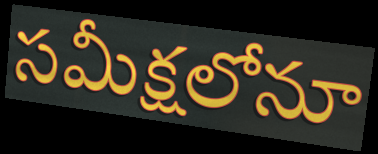
సమీక్షలోనూ